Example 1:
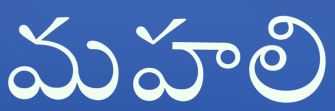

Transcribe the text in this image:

మహలి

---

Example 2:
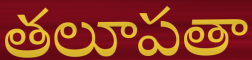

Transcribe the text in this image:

తలూపతా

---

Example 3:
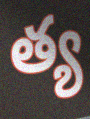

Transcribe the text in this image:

త్య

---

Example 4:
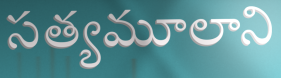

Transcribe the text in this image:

సత్యమూలాని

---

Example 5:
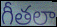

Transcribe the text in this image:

గీతలా